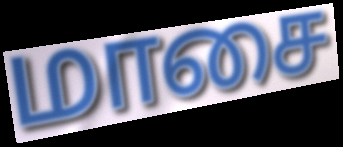
மாசை